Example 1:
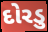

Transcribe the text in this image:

દોરડુ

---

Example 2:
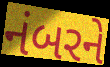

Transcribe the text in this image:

નંબરને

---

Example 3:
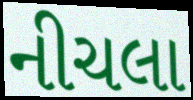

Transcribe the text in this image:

નીચલા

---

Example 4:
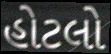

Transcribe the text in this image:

હોટલો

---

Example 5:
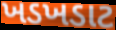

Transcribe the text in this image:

ખડખડાટ